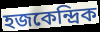
হজকেন্দ্রিক